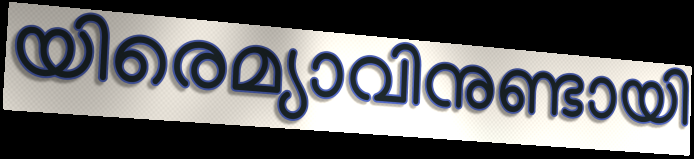
യിരെമ്യാവിനുണ്ടായി